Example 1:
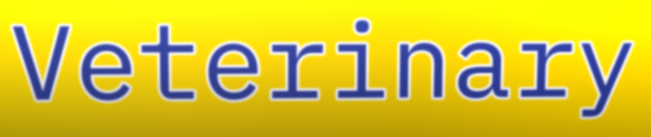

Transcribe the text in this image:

Veterinary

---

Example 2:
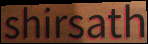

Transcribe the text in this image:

shirsath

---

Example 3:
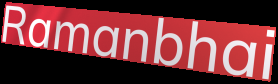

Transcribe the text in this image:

Ramanbhai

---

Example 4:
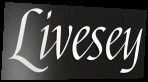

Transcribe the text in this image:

Livesey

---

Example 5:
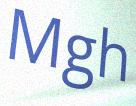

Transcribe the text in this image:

Mgh